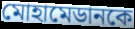
মোহামেডানকে